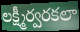
లక్ష్మీర్వరకలా